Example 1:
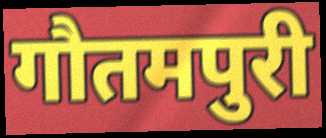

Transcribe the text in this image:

गौतमपुरी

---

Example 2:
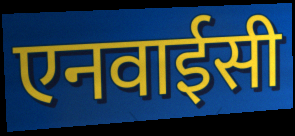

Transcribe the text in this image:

एनवाईसी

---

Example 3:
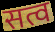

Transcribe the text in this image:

सत्व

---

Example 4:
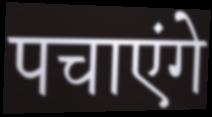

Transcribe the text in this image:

पचाएंगे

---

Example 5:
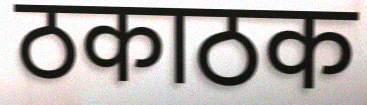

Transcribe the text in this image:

ठकाठक